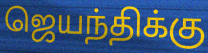
ஜெயந்திக்கு